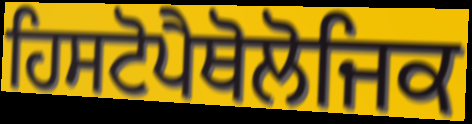
ਹਿਸਟੋਪੈਥੋਲੋਜਿਕ